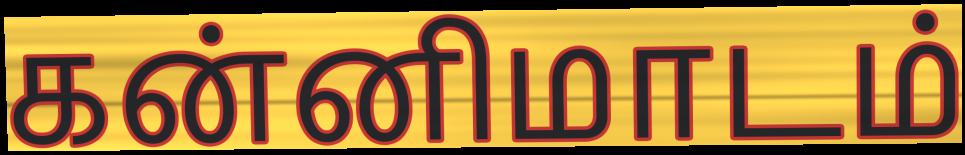
கன்னிமாடம்